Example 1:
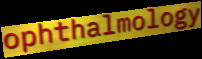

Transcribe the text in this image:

ophthalmology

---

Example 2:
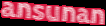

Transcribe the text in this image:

ansunan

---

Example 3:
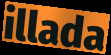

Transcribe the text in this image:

illada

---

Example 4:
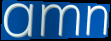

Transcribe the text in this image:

amn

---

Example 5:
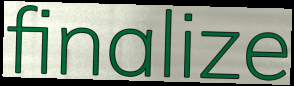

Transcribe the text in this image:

finalize